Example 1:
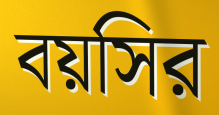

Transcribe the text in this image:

বয়সির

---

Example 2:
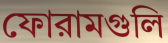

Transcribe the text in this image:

ফোরামগুলি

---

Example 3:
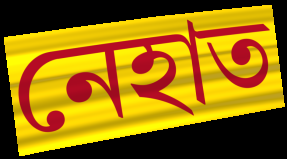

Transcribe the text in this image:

নেহাত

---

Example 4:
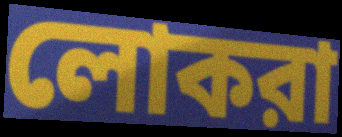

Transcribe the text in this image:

লোকরা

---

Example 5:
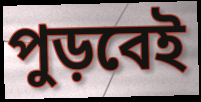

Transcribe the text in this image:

পুড়বেই